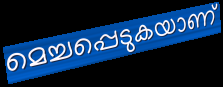
മെച്ചപ്പെടുകയാണ്